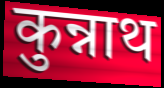
कुन्नाथ